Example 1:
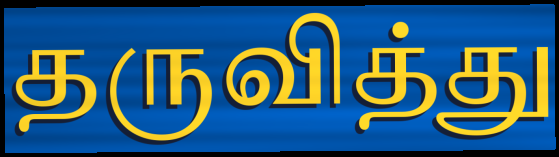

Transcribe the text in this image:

தருவித்து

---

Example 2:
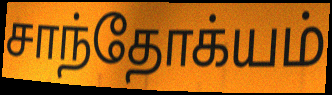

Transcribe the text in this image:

சாந்தோக்யம்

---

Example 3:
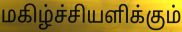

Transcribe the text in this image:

மகிழ்ச்சியளிக்கும்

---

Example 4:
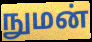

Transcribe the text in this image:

நுமன்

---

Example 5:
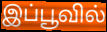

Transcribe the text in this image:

இப்பூவில்